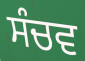
ਸੰਚਵ